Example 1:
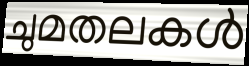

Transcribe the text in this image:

ചുമതലകൾ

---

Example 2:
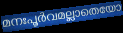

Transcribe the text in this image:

മനഃപൂർവമല്ലാതെയോ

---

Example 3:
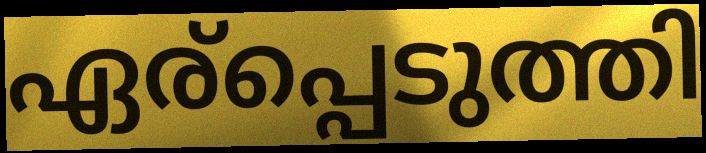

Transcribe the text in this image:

ഏര്പ്പെടുത്തി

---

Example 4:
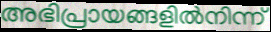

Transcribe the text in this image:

അഭിപ്രായങ്ങളിൽനിന്ന്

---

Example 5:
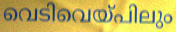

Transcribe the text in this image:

വെടിവെയ്പിലും